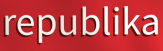
republika